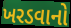
ખરડવાનો